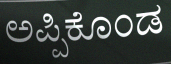
ಅಪ್ಪಿಕೊಂಡ